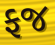
ફજ